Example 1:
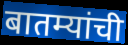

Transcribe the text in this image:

बातम्यांची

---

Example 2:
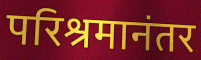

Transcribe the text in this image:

परिश्रमानंतर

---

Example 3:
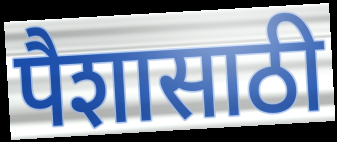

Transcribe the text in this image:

पैशासाठी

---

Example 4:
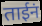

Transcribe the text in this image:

ताईनं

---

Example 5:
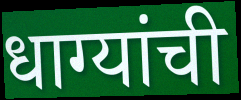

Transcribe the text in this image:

धाग्यांची